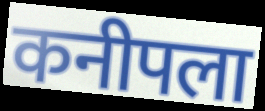
कनीपला